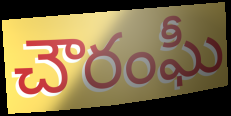
చౌరంఘీ